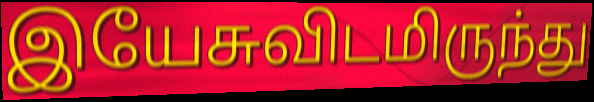
இயேசுவிடமிருந்து